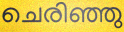
ചെരിഞ്ഞു